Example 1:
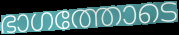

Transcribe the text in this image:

ഭാഗത്തോടെ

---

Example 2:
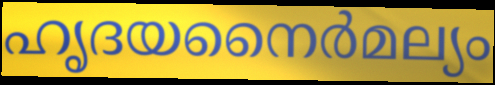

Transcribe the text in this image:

ഹൃദയനൈർമല്യം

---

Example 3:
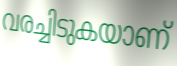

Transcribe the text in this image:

വരച്ചിടുകയാണ്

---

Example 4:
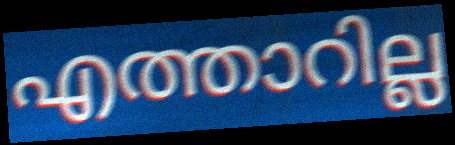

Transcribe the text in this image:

എത്താറില്ല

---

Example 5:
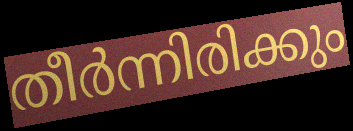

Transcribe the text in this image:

തീർന്നിരിക്കും